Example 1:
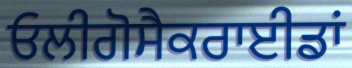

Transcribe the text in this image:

ਓਲੀਗੋਸੈਕਰਾਈਡਾਂ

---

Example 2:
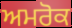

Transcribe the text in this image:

ਅਮਰੋਕ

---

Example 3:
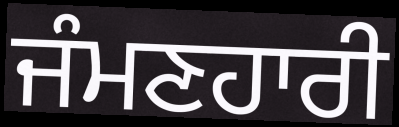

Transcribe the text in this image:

ਜੰਮਣਹਾਰੀ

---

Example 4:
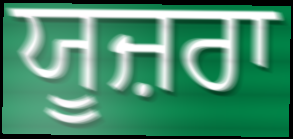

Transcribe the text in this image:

ਯੂਜ਼ਰਾ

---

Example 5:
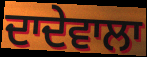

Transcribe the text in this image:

ਦਾਦੇਵਾਲਾ